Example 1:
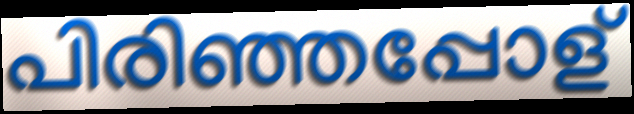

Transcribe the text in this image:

പിരിഞ്ഞപ്പോള്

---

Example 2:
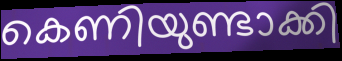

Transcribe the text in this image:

കെണിയുണ്ടാക്കി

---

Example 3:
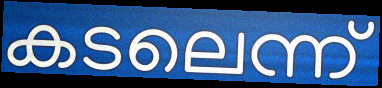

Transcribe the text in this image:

കടലെന്ന്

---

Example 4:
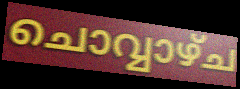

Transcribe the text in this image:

ചൊവ്വാഴ്ച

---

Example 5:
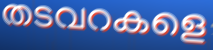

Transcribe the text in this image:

തടവറകളെ